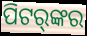
ପିଟର୍‌ଙ୍କର